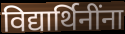
विद्यार्थिनींना